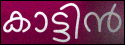
കാട്ടിൻ